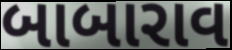
બાબારાવ